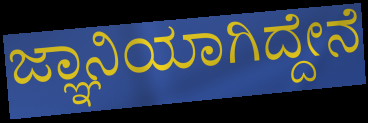
ಜ್ಞಾನಿಯಾಗಿದ್ದೇನೆ